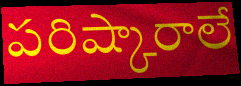
పరిష్కారాలే